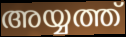
അയ്യത്ത്